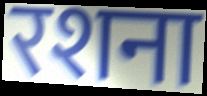
रशना